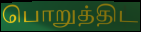
பொறுத்திட